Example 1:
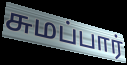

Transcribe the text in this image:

சுமப்பார்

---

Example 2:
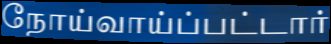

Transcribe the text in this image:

நோய்வாய்ப்பட்டார்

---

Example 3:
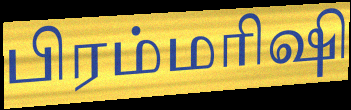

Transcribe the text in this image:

பிரம்மரிஷி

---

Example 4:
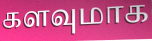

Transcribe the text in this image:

களவுமாக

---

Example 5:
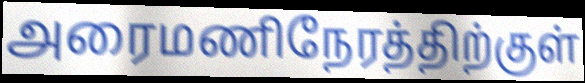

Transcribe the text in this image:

அரைமணிநேரத்திற்குள்